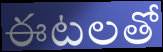
ఈటలతో